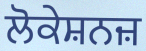
ਲੋਕੇਸ਼ਨਜ਼